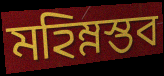
মহিম্নস্তব